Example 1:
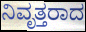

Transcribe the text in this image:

ನಿವೃತ್ತರಾದ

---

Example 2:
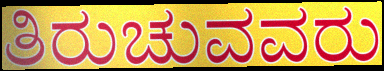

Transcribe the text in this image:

ತಿರುಚುವವರು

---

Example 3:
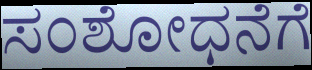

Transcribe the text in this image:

ಸಂಶೋಧನೆಗೆ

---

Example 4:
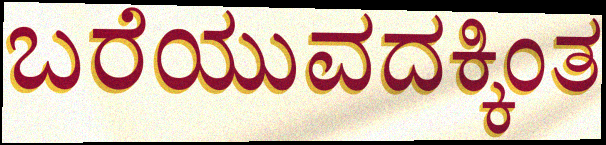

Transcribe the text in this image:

ಬರೆಯುವದಕ್ಕಿಂತ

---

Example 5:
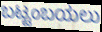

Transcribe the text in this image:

ಬಟ್ಟಂಬಯಲು